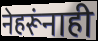
नेहरूंनाही